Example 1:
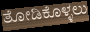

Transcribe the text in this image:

ತೋಡಿಕೊಳ್ಳಲು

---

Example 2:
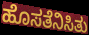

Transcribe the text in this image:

ಹೊಸತೆನಿಸಿತು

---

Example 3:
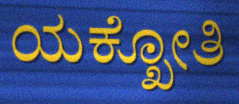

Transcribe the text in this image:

ಯಕ್ಖೋತಿ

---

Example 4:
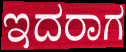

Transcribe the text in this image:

ಇದರಾಗ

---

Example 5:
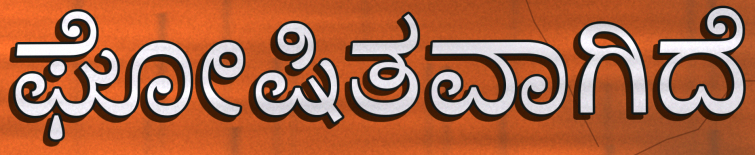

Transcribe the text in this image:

ಘೋಷಿತವಾಗಿದೆ